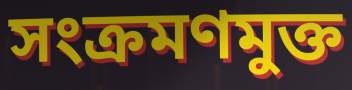
সংক্রমণমুক্ত